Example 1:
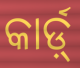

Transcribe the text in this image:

କାର୍ଡ଼୍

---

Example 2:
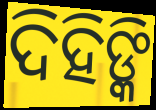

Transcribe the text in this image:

ଦିହିଙ୍କି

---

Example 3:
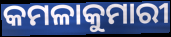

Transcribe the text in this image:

କମଳାକୁମାରୀ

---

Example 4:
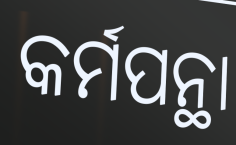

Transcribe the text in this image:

କର୍ମପନ୍ଥା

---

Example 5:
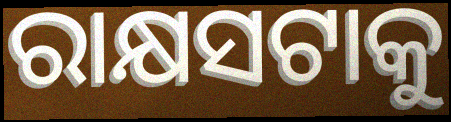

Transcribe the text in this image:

ରାକ୍ଷସଟାକୁ